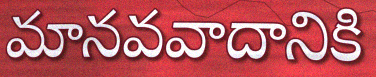
మానవవాదానికి